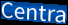
Centra